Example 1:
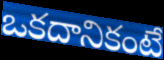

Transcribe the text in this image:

ఒకదానికంటే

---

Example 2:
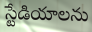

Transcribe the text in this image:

స్టేడియాలను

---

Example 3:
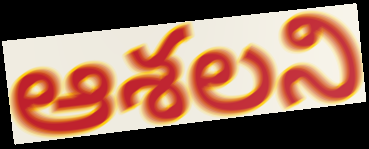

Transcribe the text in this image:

ఆశలని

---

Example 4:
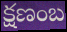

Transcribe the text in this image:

క్షణంబ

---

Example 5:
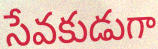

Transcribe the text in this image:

సేవకుడుగా